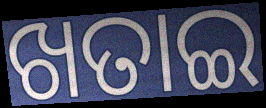
ଖତାଇ